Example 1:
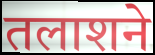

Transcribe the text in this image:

तलाशने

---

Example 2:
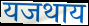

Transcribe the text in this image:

यजथाय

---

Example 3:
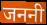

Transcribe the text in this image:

जननी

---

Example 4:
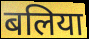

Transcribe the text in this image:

बलिया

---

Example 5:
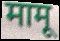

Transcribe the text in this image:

मामू